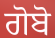
ਗੋਬੋ